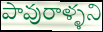
పావురాళ్ళని